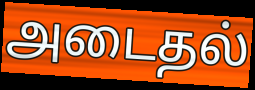
அடைதல்